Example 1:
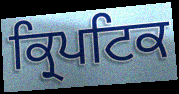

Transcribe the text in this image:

ਕ੍ਰਿਪਟਿਕ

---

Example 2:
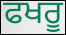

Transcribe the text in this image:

ਫਖਰੂ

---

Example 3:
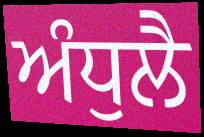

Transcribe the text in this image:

ਅੰਧੁਲੈ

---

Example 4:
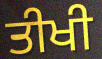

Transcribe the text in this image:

ਤੀਖੀ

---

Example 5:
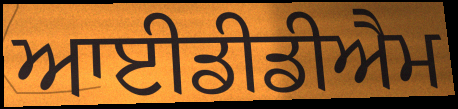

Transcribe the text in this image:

ਆਈਡੀਡੀਐਮ